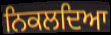
ਨਿਕਲਦਿਆ